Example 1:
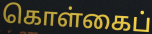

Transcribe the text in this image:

கொள்கைப்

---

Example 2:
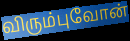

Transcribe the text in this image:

விரும்புவோன்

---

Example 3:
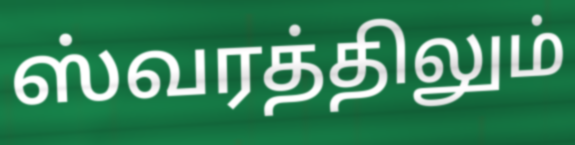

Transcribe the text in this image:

ஸ்வரத்திலும்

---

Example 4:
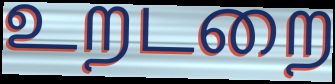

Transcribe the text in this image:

உறடறை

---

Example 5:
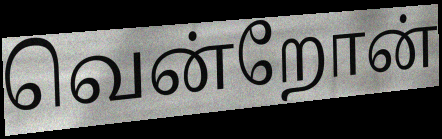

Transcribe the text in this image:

வென்றோன்